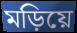
মড়িয়ে